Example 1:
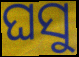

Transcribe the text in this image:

ଘସୁ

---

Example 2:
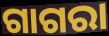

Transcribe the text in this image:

ଗାଗରା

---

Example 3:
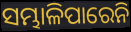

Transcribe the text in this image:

ସମ୍ଭାଳିପାରେନି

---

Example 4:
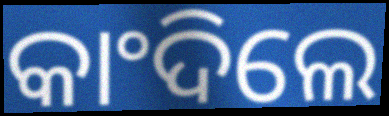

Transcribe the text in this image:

କାଂଦିଲେ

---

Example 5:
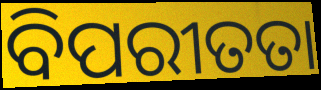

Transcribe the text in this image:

ବିପରୀତତା